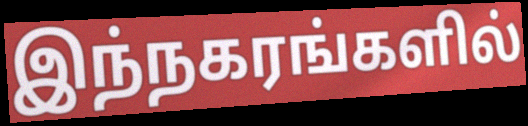
இந்நகரங்களில்